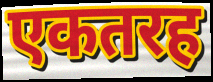
एकतरह